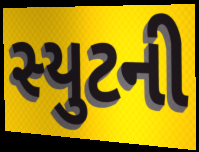
સ્યુટની